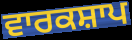
ਵਾਰਕਸ਼ਾਪ